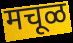
मचूळ